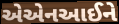
એએનઆઈને